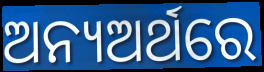
ଅନ୍ୟଅର୍ଥରେ